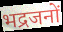
भद्रजनों